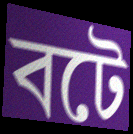
বটে